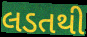
લડતથી